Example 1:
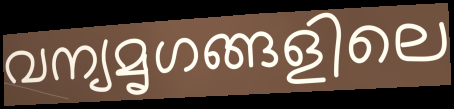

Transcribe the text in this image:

വന്യമൃഗങ്ങളിലെ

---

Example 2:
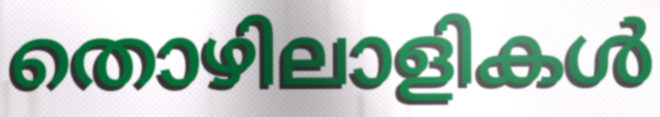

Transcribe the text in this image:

തൊഴിലാളികൾ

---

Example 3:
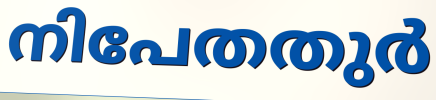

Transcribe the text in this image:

നിപേതതുർ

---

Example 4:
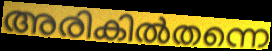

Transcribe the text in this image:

അരികിൽതന്നെ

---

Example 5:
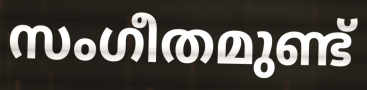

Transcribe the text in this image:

സംഗീതമുണ്ട്